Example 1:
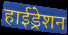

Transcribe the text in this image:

हाईड्रेशन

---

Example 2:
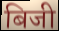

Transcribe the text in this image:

बिजी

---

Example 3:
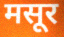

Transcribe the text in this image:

मसूर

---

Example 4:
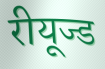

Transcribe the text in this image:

रीयूज्ड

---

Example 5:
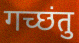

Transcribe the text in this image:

गच्छंतु